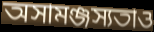
অসামঞ্জস্যতাও